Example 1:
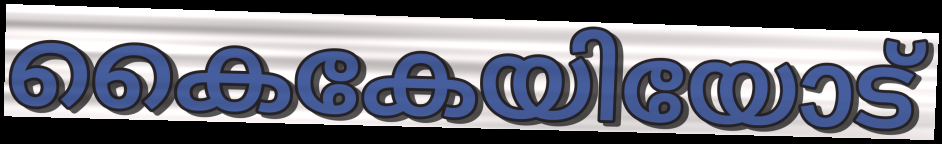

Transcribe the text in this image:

കൈകേയിയോട്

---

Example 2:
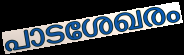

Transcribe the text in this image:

പാടശേഖരം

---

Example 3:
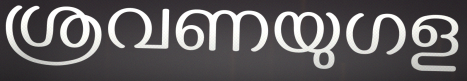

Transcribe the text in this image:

ശ്രവണയുഗള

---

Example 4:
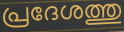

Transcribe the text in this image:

പ്രദേശത്തു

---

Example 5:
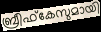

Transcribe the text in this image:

ബ്രീഫ്കേസുമായി